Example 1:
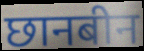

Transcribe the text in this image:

छानबीन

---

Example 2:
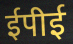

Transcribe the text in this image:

ईपीई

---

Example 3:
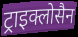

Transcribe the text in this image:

ट्राइक्लोसैन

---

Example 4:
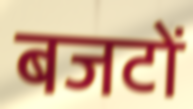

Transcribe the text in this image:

बजटों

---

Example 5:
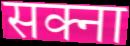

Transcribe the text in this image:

सक्ना